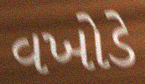
વખોડે